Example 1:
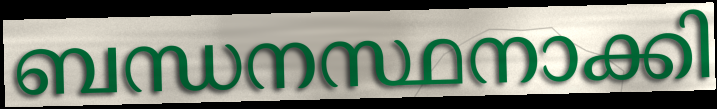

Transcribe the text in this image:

ബന്ധനസ്ഥനാക്കി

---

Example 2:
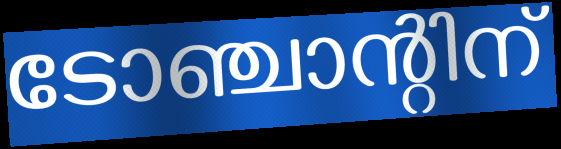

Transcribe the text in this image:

ടോഞ്ചാന്റിന്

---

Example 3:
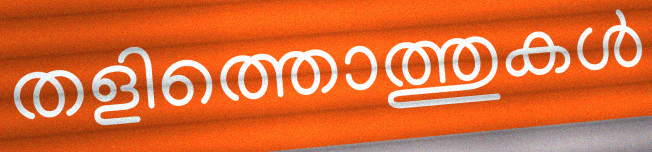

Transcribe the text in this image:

തളിത്തൊത്തുകൾ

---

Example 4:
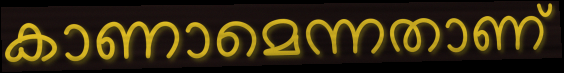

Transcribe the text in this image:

കാണാമെന്നതാണ്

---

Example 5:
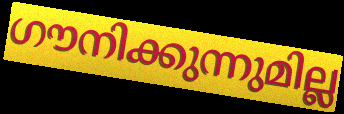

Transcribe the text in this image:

ഗൗനിക്കുന്നുമില്ല